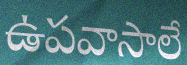
ఉపవాసాలే